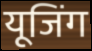
यूजिंग